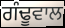
ਗੰਢੂਵਾਲ